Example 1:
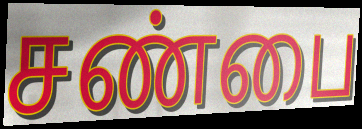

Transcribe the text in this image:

சண்பை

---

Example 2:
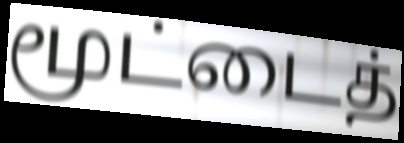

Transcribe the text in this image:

மூட்டைத்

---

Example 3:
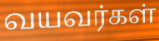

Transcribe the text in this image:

வயவர்கள்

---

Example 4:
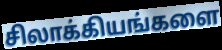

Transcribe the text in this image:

சிலாக்கியங்களை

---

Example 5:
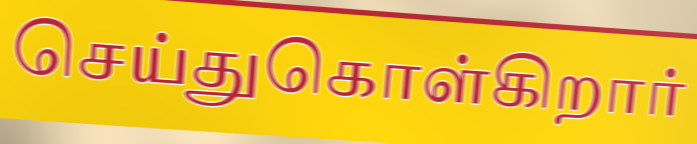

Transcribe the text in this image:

செய்துகொள்கிறார்